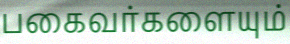
பகைவர்களையும்